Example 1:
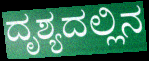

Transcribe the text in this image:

ದೃಶ್ಯದಲ್ಲಿನ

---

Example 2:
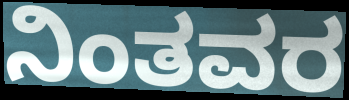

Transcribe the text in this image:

ನಿಂತವರ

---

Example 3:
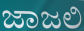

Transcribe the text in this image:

ಜಾಜಲಿ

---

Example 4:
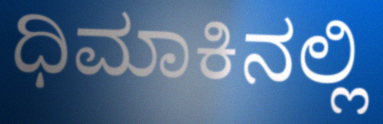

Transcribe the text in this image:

ಧಿಮಾಕಿನಲ್ಲಿ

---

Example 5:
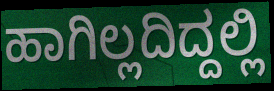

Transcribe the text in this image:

ಹಾಗಿಲ್ಲದಿದ್ದಲ್ಲಿ